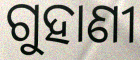
ଗୁହାଣୀ